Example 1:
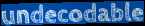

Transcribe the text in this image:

undecodable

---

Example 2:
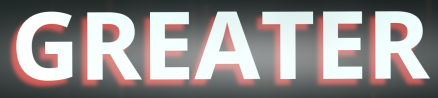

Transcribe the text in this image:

GREATER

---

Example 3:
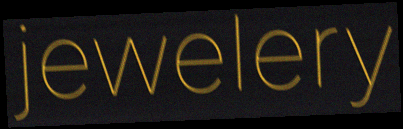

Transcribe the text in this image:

jewelery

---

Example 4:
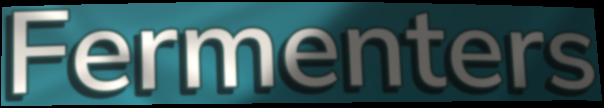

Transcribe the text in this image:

Fermenters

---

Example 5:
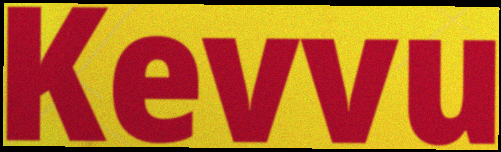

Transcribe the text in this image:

Kevvu